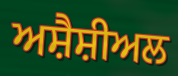
ਅਸ਼ੈਸ਼ੀਅਲ